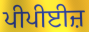
ਪੀਪੀਈਜ਼